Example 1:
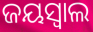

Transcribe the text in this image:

ଜୟସ୍ୱାଲ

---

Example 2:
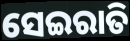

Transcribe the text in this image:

ସେଇରାତି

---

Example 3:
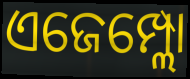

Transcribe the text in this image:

ଏଜେମ୍ପ୍ଲୋ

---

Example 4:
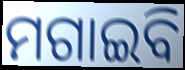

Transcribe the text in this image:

ମଗାଇବି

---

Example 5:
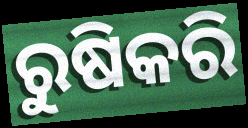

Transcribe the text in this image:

ରୁଷିକରି